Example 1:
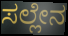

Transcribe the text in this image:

ಸಲ್ಲೇನ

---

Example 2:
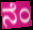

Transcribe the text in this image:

ನೆಂ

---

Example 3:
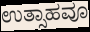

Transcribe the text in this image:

ಉತ್ಸಾಹವೂ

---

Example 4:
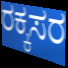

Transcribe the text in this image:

ರಕ್ಕಸರ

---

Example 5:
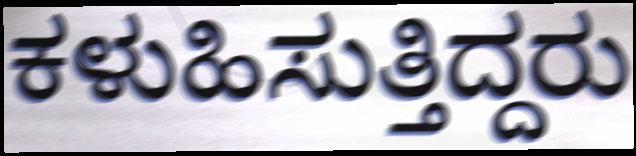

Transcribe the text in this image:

ಕಳುಹಿಸುತ್ತಿದ್ದರು